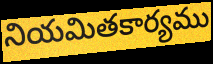
నియమితకార్యము